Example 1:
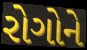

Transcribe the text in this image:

રોગોને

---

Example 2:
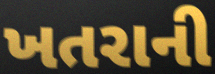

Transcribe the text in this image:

ખતરાની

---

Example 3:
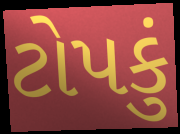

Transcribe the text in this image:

ટોપકું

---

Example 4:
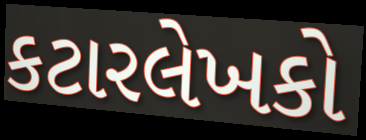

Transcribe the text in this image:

કટારલેખકો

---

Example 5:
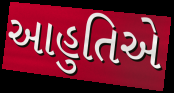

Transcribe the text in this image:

આહુતિએ